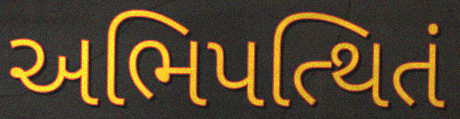
અભિપત્થિતં